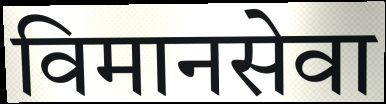
विमानसेवा